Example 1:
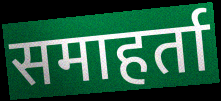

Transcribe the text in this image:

समाहर्ता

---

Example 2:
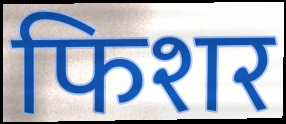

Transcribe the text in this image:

फिशर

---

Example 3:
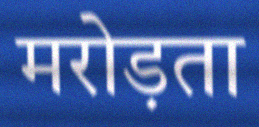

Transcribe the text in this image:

मरोड़ता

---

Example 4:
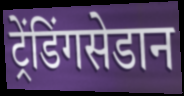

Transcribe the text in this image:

ट्रेंडिंगसेडान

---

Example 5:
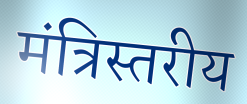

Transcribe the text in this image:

मंत्रिस्तरीय